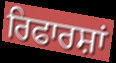
ਰਿਫਾਰਸ਼ਾਂ